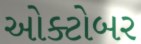
ઓક્ટોબર